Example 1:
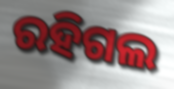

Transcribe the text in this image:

ରହିଗଲ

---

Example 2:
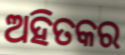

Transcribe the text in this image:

ଅହିତକର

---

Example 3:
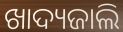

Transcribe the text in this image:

ଖାଦ୍ୟଜାଲି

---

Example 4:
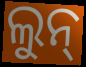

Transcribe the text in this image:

ଲୁନ୍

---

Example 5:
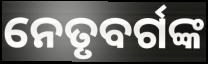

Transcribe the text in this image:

ନେତୃବର୍ଗଙ୍କ